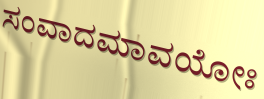
ಸಂವಾದಮಾವಯೋಃ